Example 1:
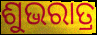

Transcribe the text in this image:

ଶୁଭରାତ୍ର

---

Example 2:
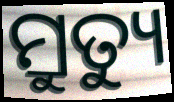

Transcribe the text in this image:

ମ୍ରୁତ୍ୟୁ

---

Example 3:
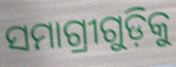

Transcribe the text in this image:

ସମାଗ୍ରୀଗୁଡ଼ିକୁ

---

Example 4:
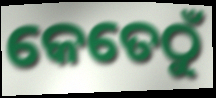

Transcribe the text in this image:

କେତେଠୁଁ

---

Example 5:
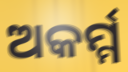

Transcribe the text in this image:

ଅକର୍ମ୍ମ